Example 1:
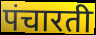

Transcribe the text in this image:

पंचारती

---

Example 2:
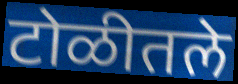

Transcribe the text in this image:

टोळीतले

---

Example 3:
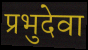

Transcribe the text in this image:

प्रभुदेवा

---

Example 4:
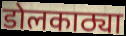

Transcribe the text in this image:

डोलकाठ्या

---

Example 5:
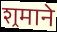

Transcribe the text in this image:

श्रमाने